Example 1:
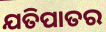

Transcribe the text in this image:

ଯତିପାତର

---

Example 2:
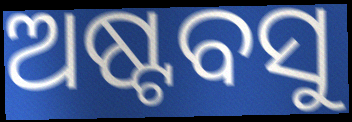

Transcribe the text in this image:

ଅଷ୍ଟବସୁ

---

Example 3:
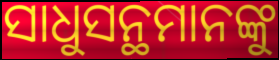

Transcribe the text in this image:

ସାଧୁସନ୍ଥମାନଙ୍କୁ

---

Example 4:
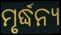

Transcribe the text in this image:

ମୃର୍ଦ୍ଧନ୍ୟ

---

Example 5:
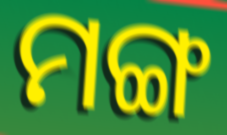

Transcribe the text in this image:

ମଙ୍ଗ